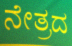
ನೇತ್ರದ